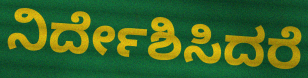
ನಿರ್ದೇಶಿಸಿದರೆ